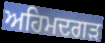
ਅਹਿਮਦਗੜ